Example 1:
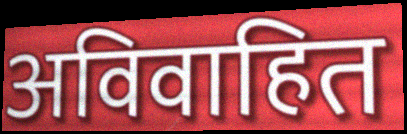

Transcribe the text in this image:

अविवाहित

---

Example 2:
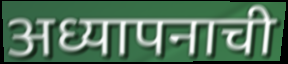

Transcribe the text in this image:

अध्यापनाची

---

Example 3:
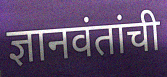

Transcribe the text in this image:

ज्ञानवंतांची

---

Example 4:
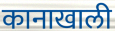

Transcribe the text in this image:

कानाखाली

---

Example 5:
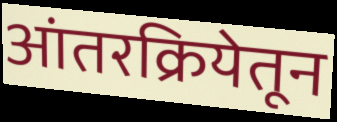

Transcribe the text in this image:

आंतरक्रियेतून